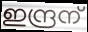
ഇന്ദ്രന്